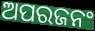
ଅପରଜନଂ